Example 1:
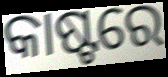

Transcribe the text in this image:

କାଷ୍ଟରେ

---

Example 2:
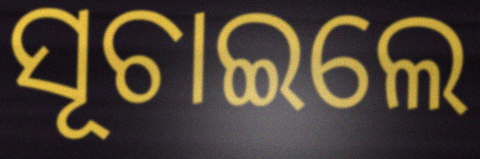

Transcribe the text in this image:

ସୂଚାଇଲେ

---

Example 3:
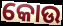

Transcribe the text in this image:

କୋଉ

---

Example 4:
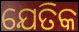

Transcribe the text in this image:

ଯେତିକ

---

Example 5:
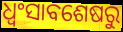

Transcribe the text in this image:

ଧ୍ୱଂସାବଶେଷରୁ